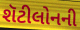
શૅટીલોનની